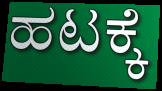
ಹಟಕ್ಕೆ